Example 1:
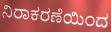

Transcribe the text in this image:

ನಿರಾಕರಣೆಯಿಂದ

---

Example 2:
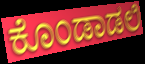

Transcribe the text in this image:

ಕೊಂಡಾಡಲಿ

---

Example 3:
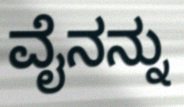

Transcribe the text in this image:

ವೈನನ್ನು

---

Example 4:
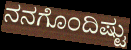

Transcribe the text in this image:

ನನಗೊಂದಿಷ್ಟು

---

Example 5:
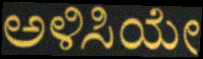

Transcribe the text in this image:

ಅಳಿಸಿಯೇ